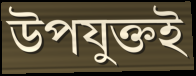
উপযুক্তই